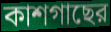
কাশগাছের